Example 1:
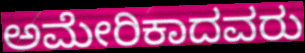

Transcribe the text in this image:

ಅಮೇರಿಕಾದವರು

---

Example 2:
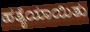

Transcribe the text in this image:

ಹತ್ಯೆಯಾಯಿತು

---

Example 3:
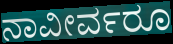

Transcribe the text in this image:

ನಾವೀರ್ವರೂ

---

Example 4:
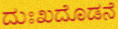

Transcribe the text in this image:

ದುಃಖದೊಡನೆ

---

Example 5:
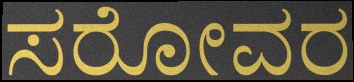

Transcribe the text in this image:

ಸರೋವರ